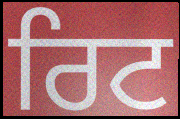
ਰਿਟ